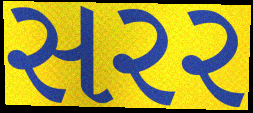
સરર